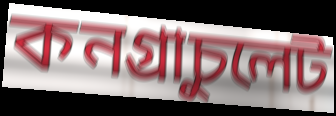
কনগ্রাচুলেট